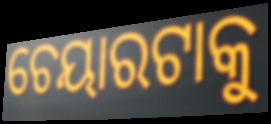
ଚେୟାରଟାକୁ